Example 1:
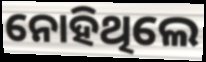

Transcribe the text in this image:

ନୋହିଥିଲେ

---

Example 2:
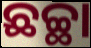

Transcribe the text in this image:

ଛଚ୍ଛା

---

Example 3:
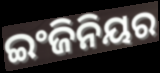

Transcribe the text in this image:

ଇଂଜିନିୟର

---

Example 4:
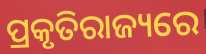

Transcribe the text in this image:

ପ୍ରକୃତିରାଜ୍ୟରେ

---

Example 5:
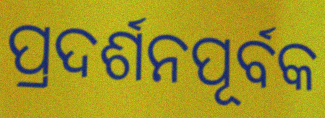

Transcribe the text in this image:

ପ୍ରଦର୍ଶନପୂର୍ବକ